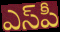
ఎస్‌పీ